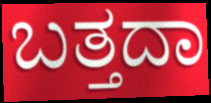
ಬತ್ತದಾ